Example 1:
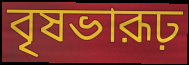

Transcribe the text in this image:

বৃষভারূঢ়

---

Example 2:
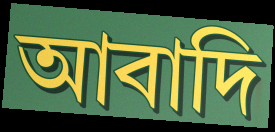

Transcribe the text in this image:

আবাদি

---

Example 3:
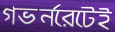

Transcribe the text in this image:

গভর্নরেটেই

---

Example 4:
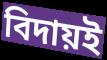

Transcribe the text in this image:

বিদায়ই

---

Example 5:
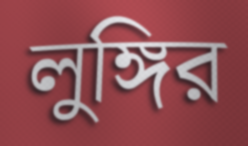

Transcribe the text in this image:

লুঙ্গির